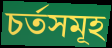
চৰ্তসমূহ